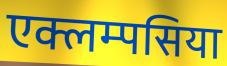
एक्लम्पसिया